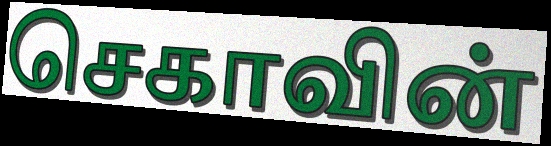
செகாவின்